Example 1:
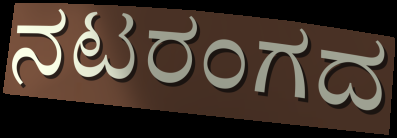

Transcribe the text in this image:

ನಟರಂಗದ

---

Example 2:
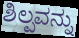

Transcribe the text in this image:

ಶಿಲ್ಪವನ್ನು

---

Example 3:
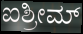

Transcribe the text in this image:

ಐಶ್ರೀಮ್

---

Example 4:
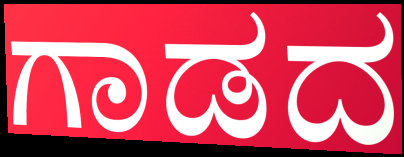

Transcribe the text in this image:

ಗಾಡದ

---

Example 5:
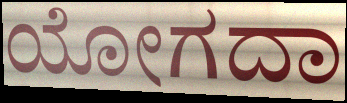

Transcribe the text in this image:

ಯೋಗದಾ